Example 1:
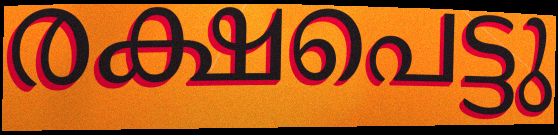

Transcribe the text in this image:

രക്ഷപെട്ടു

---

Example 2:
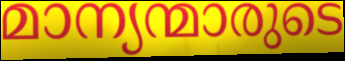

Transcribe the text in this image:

മാന്യന്മാരുടെ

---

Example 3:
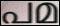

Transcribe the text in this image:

പമ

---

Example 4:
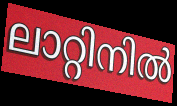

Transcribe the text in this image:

ലാറ്റിനിൽ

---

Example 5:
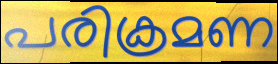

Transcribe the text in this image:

പരിക്രമണ